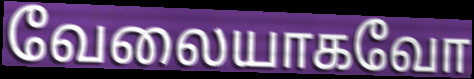
வேலையாகவோ